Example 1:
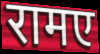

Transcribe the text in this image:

रामए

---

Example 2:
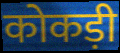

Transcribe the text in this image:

कोकड़ी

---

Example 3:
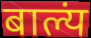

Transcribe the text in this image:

बाल्यं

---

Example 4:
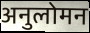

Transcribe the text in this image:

अनुलोमन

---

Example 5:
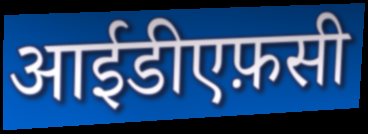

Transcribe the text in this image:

आईडीएफ़सी